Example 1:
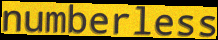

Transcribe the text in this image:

numberless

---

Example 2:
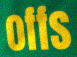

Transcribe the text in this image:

offs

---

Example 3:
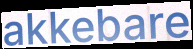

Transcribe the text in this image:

akkebare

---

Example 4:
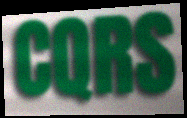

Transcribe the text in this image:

CQRS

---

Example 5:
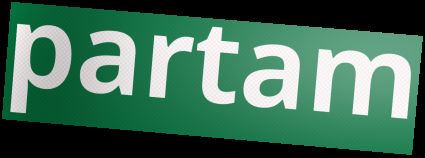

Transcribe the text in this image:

partam